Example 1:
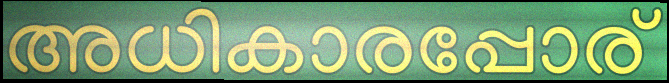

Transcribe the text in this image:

അധികാരപ്പോര്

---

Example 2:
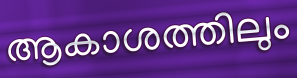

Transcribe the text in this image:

ആകാശത്തിലും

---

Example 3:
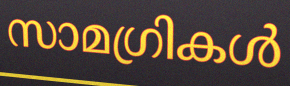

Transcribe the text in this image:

സാമഗ്രികൾ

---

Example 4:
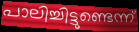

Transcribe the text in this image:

പാലിച്ചിട്ടുണ്ടെന്ന്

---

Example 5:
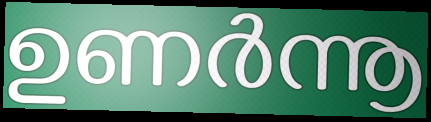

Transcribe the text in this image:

ഉണർന്നൂ